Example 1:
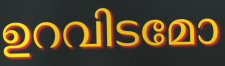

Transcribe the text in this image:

ഉറവിടമോ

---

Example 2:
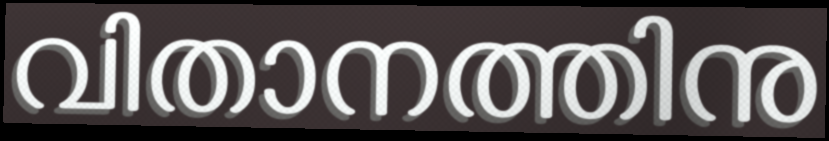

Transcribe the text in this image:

വിതാനത്തിനു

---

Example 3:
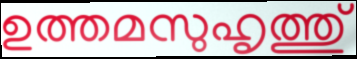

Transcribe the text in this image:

ഉത്തമസുഹൃത്തു്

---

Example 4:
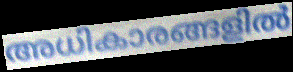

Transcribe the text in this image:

അധികാരങ്ങളിൽ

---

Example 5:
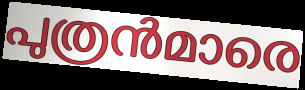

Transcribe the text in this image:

പുത്രൻമാരെ